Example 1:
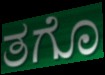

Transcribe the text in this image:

ತಗೊ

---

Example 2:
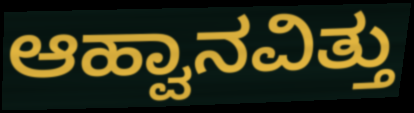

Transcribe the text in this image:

ಆಹ್ವಾನವಿತ್ತು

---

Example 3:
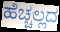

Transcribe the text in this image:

ಹೆಚ್ಚಲ್ಲದ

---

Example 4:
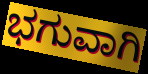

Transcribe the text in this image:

ಭಗುವಾಗಿ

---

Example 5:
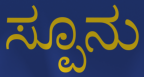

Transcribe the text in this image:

ಸ್ಪೂನು